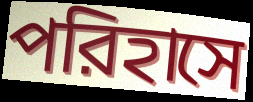
পরিহাসে